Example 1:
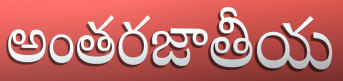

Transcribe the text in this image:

అంతరజాతీయ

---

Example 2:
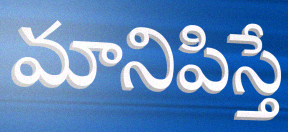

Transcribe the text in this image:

మానిపిస్తే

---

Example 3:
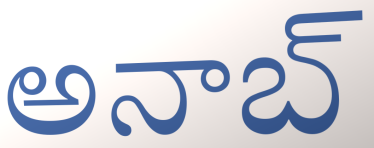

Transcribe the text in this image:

అనాబ్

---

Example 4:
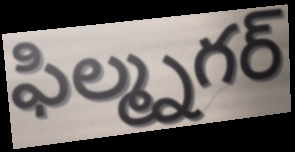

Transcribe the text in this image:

ఫిల్మ్నగర్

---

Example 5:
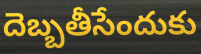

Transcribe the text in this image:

దెబ్బతీసేందుకు